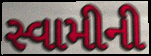
સ્વામીની